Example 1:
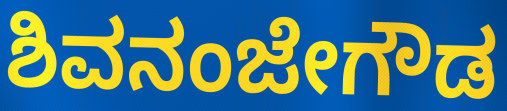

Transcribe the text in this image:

ಶಿವನಂಜೇಗೌಡ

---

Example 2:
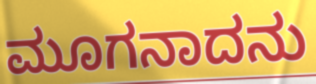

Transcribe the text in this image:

ಮೂಗನಾದನು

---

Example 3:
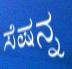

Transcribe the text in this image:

ಸೆಷನ್ನ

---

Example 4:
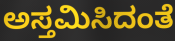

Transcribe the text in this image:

ಅಸ್ತಮಿಸಿದಂತೆ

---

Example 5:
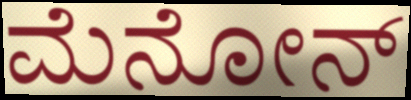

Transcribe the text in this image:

ಮೆನೋನ್